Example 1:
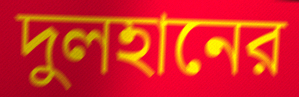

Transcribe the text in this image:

দুলহানের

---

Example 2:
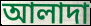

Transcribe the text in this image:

আলাদা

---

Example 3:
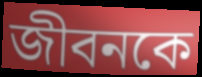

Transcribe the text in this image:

জীবনকে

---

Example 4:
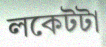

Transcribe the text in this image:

লকেটটা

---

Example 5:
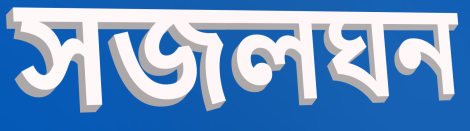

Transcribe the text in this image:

সজলঘন